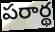
పరార్థ